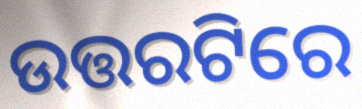
ଉତ୍ତରଟିରେ